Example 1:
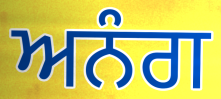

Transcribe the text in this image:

ਅਨੰਗ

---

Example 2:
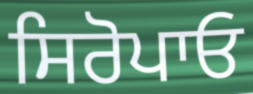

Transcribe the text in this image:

ਸਿਰੋਪਾਓ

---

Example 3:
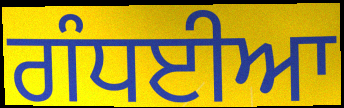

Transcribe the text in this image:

ਗੰਧਈਆ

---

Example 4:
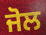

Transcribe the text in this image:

ਜੋਲ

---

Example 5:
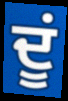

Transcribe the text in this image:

ਦੂਂ